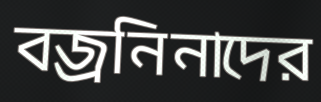
বজ্রনিনাদের